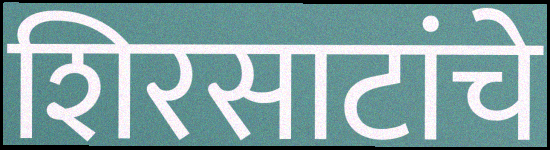
शिरसाटांचे